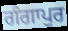
ਗੰਗਾਪੁਰ